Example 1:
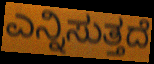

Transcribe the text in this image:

ಎನ್ನಿಸುತ್ತದೆ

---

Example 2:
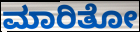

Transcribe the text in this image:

ಮಾರಿತೋ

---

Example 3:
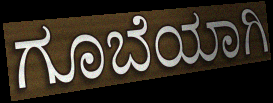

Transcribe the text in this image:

ಗೂಬೆಯಾಗಿ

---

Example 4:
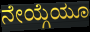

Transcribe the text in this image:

ನೇಯ್ಗೆಯೂ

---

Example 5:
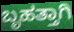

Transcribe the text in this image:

ಬೃಹತ್ತಾಗಿ